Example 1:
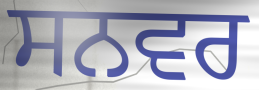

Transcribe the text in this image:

ਸਨਵਰ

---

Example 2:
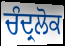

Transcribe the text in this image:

ਚੰਦ੍ਰਲੋਕ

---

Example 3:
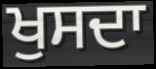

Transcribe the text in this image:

ਖੁਸਦਾ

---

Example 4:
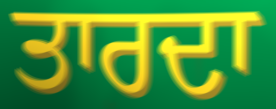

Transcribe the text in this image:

ਤਾਰਦਾ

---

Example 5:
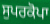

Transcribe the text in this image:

ਸੁਪਰਕੋਪਾ